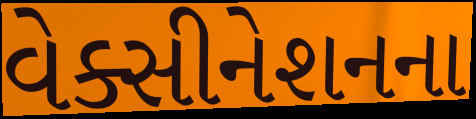
વેક્સીનેશનના